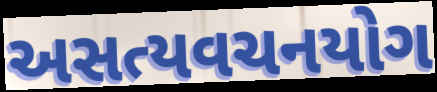
અસત્યવચનયોગ